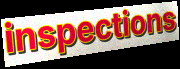
inspections